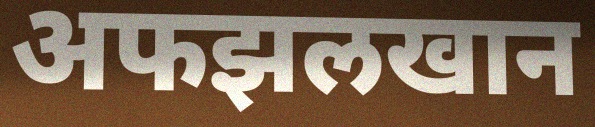
अफझलखान